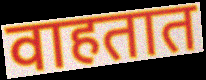
वाहतात